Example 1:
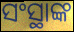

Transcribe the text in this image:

ସଂସ୍ଥାଙ୍କ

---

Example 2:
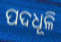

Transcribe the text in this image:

ପଦଧୂଳି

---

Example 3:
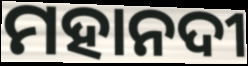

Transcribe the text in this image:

ମହାନଦୀ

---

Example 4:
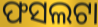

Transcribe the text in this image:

ଫସଲଟା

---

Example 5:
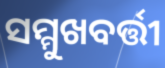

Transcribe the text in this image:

ସମ୍ମୁଖବର୍ତ୍ତୀ